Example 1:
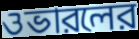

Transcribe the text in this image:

ওভারলের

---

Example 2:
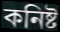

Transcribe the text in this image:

কনিষ্ট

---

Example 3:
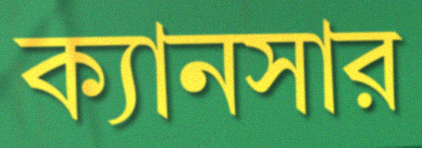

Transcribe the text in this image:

ক্যানসার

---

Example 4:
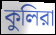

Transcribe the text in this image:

কুলিরা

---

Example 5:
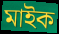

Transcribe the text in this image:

মাইক